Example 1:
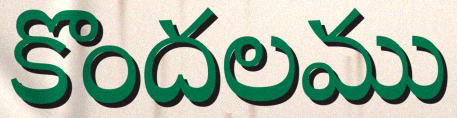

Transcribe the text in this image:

కొందలము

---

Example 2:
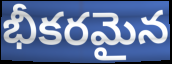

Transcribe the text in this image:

భీకరమైన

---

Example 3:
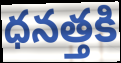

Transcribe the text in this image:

ధనత్తకి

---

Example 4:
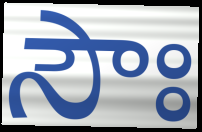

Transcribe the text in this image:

సౌః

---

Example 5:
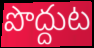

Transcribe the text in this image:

పొద్దుట